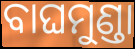
ବାଘମୁଣ୍ଡା